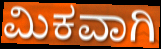
ಮಿಕವಾಗಿ